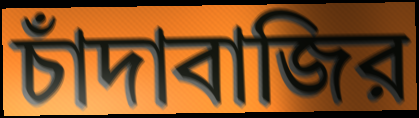
চাঁদাবাজির